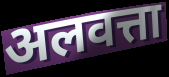
अलवत्ता